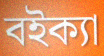
বইক্যা